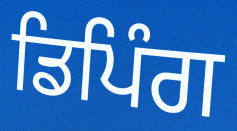
ਡਿਪਿੰਗ